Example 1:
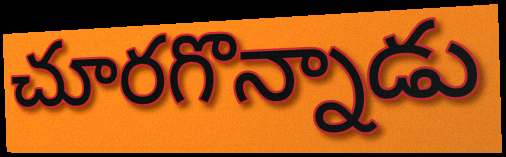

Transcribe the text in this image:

చూరగొన్నాడు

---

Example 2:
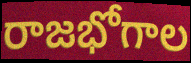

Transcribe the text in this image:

రాజభోగాల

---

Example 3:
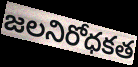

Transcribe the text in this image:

జలనిరోధకత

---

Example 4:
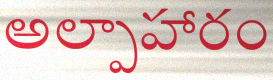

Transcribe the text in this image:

అల్పాహారం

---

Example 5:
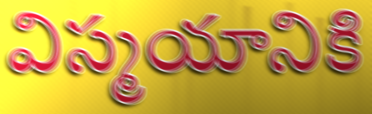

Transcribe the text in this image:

విస్మయానికి